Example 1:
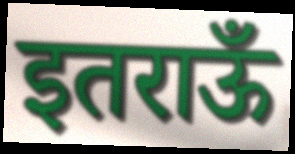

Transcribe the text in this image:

इतराऊँ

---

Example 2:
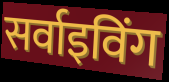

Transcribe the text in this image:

सर्वाइविंग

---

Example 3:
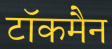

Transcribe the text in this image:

टॉकमैन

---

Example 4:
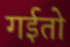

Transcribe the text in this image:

गईतो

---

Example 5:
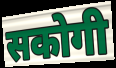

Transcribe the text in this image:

सकोगी